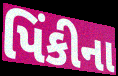
પિંકીના